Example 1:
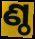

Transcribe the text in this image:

ଣ୍ଠ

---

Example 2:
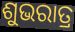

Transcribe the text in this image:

ଶୁଭରାତ୍ର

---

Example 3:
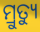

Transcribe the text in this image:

ମ୍ରୁତ୍ୟୁ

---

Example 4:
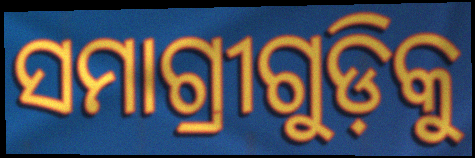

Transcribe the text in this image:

ସମାଗ୍ରୀଗୁଡ଼ିକୁ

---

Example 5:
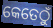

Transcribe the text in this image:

କେତେଠୁଁ